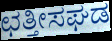
ಛತ್ತೀಸಘಡ